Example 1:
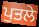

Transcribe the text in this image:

ਪੁਤਲੇ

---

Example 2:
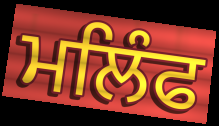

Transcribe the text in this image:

ਮਲਿੰਫ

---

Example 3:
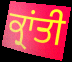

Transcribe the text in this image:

ਕ੍ਰਾਂਤੀ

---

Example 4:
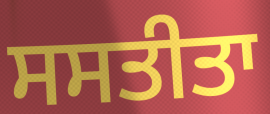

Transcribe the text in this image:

ਸਸਤੀਤਾ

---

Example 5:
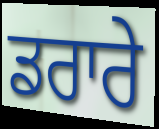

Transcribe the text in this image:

ਡਰਾਰੇ